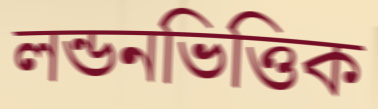
লন্ডনভিত্তিক